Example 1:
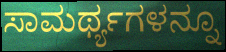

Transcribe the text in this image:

ಸಾಮರ್ಥ್ಯಗಳನ್ನೂ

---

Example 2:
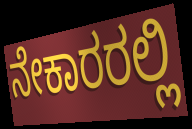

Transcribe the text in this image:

ನೇಕಾರರಲ್ಲಿ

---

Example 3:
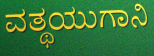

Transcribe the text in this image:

ವತ್ಥಯುಗಾನಿ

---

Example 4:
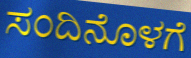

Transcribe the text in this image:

ಸಂದಿನೊಳಗೆ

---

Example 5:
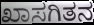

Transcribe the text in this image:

ಖಾಸಗಿತನ